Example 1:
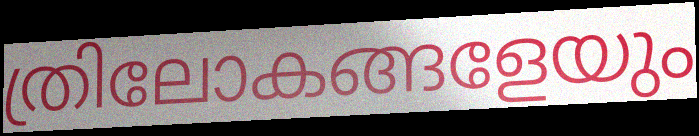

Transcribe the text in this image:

ത്രിലോകങ്ങളേയും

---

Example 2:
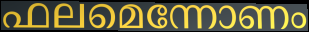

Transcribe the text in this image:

ഫലമെന്നോണം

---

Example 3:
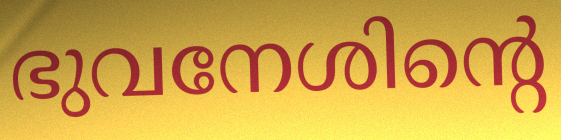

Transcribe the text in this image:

ഭുവനേശിന്റെ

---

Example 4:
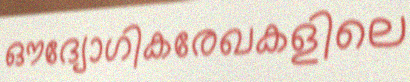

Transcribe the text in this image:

ഔദ്യോഗികരേഖകളിലെ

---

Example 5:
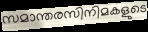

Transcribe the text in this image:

സമാന്തരസിനിമകളുടെ